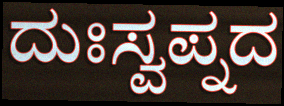
ದುಃಸ್ವಪ್ನದ